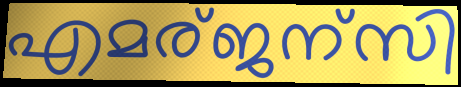
എമര്ജന്സി